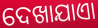
ଦେଖାଯାଏା